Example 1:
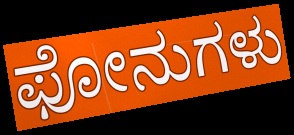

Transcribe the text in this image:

ಫೋನುಗಳು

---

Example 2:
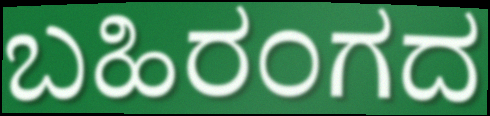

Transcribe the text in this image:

ಬಹಿರಂಗದ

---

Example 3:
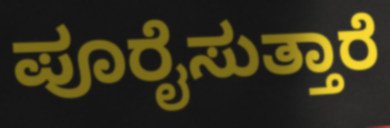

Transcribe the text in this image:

ಪೂರೈಸುತ್ತಾರೆ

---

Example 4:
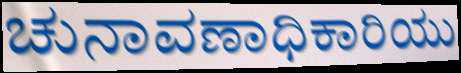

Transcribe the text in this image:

ಚುನಾವಣಾಧಿಕಾರಿಯು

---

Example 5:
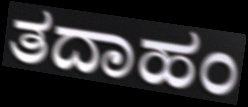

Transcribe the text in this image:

ತದಾಹಂ